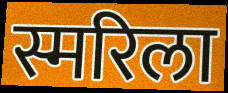
स्मरिला